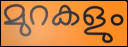
മുറകളും